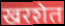
खरशेत